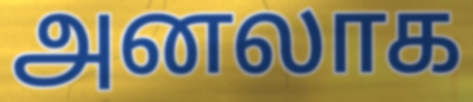
அனலாக